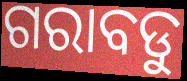
ଗରାବଡୁ